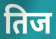
तिज